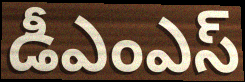
డీఎంఎస్